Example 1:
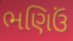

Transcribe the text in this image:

ભણિઉં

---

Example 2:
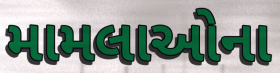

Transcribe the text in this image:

મામલાઓના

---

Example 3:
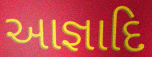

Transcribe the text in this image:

આજ્ઞાદિ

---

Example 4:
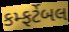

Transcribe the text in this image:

કમ્ફર્ટેબલ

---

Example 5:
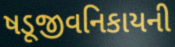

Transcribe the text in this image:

ષડૂજીવનિકાયની